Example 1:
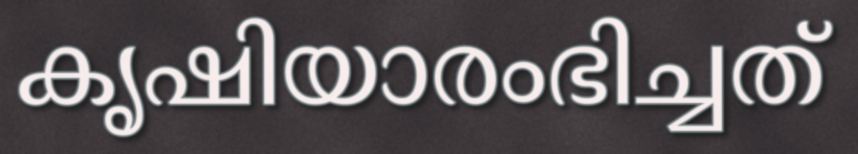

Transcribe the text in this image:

കൃഷിയാരംഭിച്ചത്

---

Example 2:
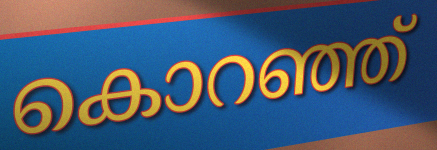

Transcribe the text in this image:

കൊറഞ്ഞ്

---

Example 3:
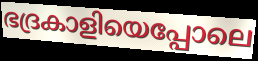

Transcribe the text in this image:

ഭദ്രകാളിയെപ്പോലെ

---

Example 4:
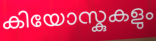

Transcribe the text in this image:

കിയോസ്കുകളും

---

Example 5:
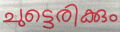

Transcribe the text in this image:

ചുട്ടെരിക്കും